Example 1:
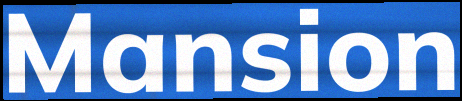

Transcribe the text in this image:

Mansion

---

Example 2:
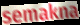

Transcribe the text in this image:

semakna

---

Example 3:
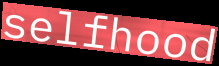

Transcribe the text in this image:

selfhood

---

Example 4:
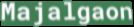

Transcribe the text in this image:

Majalgaon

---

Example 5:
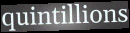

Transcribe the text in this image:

quintillions